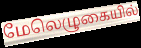
மேலெழுகையில்